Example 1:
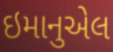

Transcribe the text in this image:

ઇમાનુએલ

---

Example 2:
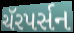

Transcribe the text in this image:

ચૅરપર્સન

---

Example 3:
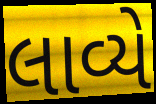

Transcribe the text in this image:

લાવ્યે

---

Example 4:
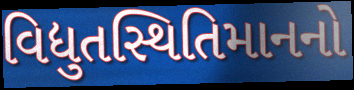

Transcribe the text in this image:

વિદ્યુતસ્થિતિમાનનો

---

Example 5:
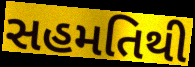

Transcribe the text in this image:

સહમતિથી